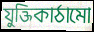
যুক্তিকাঠামো